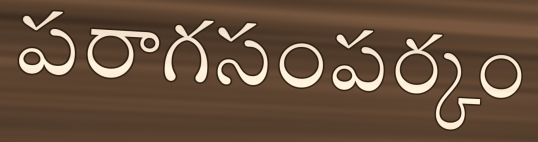
పరాగసంపర్కం